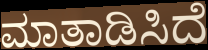
ಮಾತಾಡಿಸಿದೆ